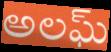
అలఘ్